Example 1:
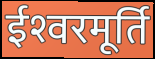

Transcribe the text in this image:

ईश्वरमूर्ति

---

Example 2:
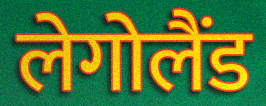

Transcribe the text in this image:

लेगोलैंड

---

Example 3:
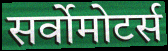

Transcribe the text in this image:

सर्वोमोटर्स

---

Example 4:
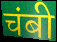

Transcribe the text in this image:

चंबी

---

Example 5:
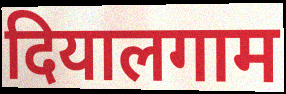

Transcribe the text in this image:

दियालगाम